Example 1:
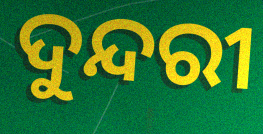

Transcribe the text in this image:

ଦୁନ୍ଦରୀ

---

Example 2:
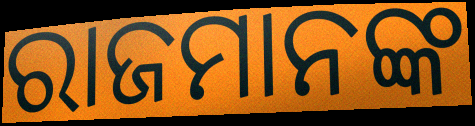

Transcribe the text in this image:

ରାଜମାନଙ୍କ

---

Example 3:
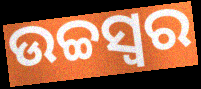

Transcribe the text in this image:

ଉଚ୍ଚସ୍ଵର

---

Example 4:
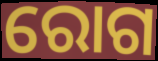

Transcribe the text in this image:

ରୋଗ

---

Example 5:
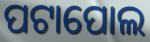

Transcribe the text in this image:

ପଟାପୋଲ